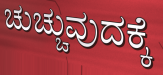
ಚುಚ್ಚುವುದಕ್ಕೆ